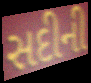
સદીની